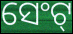
ସେଂଟ୍